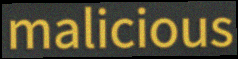
malicious